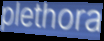
plethora